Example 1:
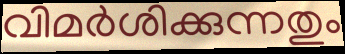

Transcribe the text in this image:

വിമർശിക്കുന്നതും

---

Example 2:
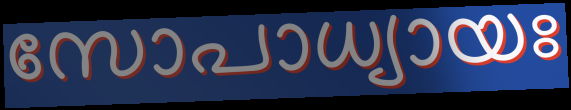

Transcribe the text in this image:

സോപാധ്യായഃ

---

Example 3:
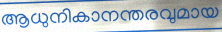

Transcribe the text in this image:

ആധുനികാനന്തരവുമായ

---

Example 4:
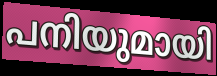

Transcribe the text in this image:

പനിയുമായി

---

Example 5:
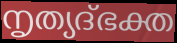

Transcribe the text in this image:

നൃത്യദ്ഭക്ത